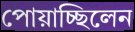
পোয়াচ্ছিলেন